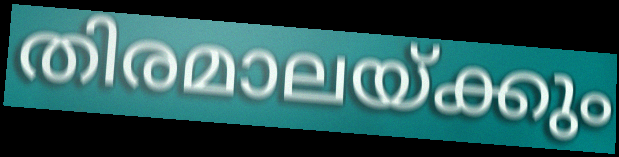
തിരമാലയ്ക്കും